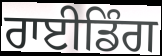
ਰਾਈਡਿੰਗ